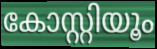
കോസ്റ്റിയൂം